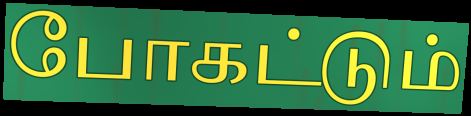
போகட்டும்